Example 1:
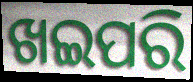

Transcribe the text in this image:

ଖଇପରି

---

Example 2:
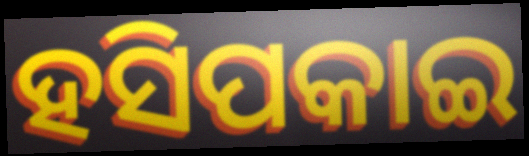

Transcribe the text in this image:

ହସିପକାଇ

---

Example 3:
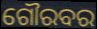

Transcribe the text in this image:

ଗୌରବର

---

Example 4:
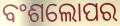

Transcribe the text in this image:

ବଂଶଲୋପର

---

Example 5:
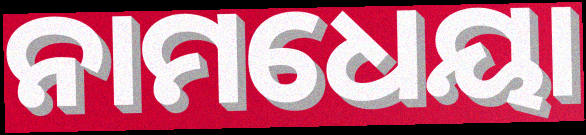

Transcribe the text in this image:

ନାମଧେୟା